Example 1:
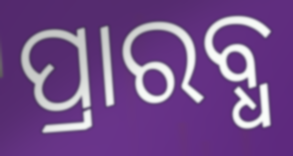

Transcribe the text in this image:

ପ୍ରାରବ୍ଧ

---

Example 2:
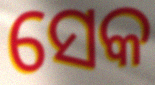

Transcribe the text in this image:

ସେକ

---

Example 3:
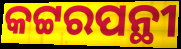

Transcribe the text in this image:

କଟ୍ଟରପନ୍ଥୀ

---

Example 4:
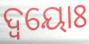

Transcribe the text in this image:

ଦ୍ବୟୋଃ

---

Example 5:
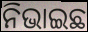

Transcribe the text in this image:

ନିଭାଇଛ